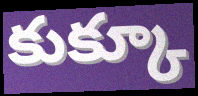
కుక్కూ